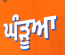
ਘੰੜੂਆ